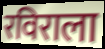
रविराला